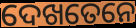
ଦେଖତେନେ